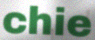
chie